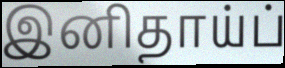
இனிதாய்ப்